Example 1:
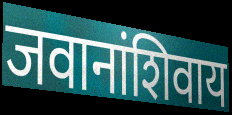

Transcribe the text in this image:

जवानांशिवाय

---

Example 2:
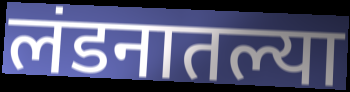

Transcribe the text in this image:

लंडनातल्या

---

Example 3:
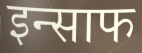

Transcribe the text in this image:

इन्साफ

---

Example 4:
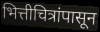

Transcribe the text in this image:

भित्तीचित्रांपासून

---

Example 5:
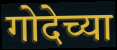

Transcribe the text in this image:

गोदेच्या